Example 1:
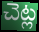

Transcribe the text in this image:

చెట్ల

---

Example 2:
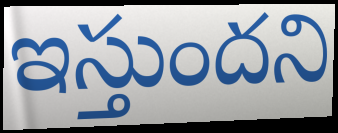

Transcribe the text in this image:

ఇస్తుందని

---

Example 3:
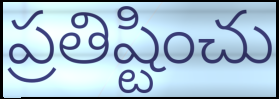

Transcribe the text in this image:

ప్రతిష్టించు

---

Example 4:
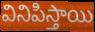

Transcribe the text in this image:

వినిపిస్తాయి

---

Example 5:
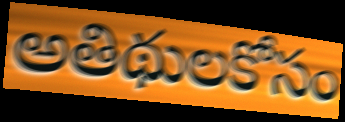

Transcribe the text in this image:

అతిథులకోసం